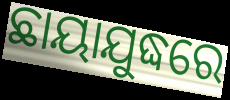
ଛାୟାଯୁଦ୍ଧରେ